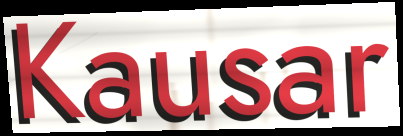
Kausar